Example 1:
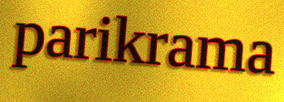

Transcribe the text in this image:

parikrama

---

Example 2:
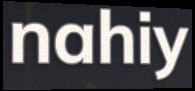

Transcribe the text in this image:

nahiy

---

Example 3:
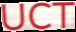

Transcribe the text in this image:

UCT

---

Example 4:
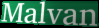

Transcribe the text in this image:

Malvan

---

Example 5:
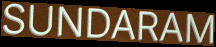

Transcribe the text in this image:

SUNDARAM